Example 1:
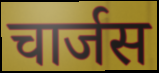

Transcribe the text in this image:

चार्जस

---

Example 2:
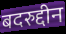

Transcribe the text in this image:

बदरुद्दीन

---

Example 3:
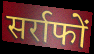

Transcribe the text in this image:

सर्राफों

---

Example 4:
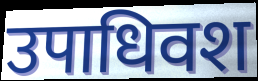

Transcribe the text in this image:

उपाधिवश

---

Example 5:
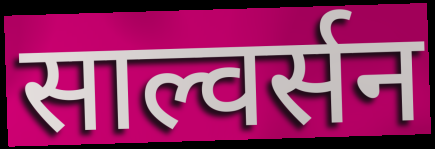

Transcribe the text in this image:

साल्वर्सन